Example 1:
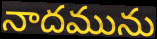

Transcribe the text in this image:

నాదమును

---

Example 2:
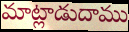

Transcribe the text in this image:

మాట్లాడుదాము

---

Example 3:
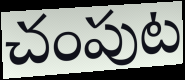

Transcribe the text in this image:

చంపుట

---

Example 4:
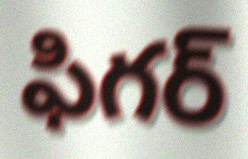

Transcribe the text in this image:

ఫిగర్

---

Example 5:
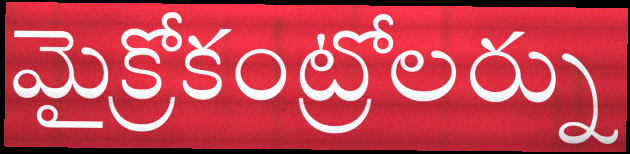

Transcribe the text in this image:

మైక్రోకంట్రోలర్ను